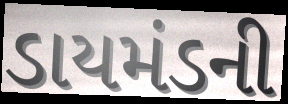
ડાયમંડની